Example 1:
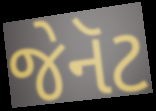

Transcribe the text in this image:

જેનૅટ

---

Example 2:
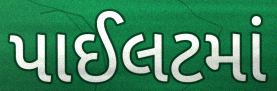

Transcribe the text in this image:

પાઈલટમાં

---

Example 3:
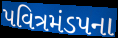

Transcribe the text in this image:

પવિત્રમંડપના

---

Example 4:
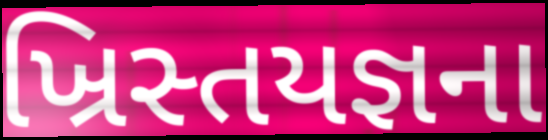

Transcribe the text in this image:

ખ્રિસ્તયજ્ઞના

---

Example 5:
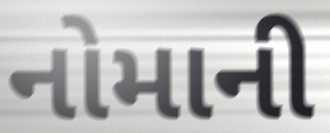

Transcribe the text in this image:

નોમાની